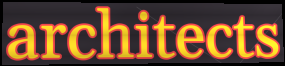
architects